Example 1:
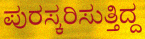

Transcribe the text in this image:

ಪುರಸ್ಕರಿಸುತ್ತಿದ್ದ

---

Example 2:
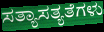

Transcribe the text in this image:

ಸತ್ಯಾಸತ್ಯತೆಗಳು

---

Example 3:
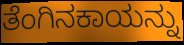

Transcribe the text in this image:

ತೆಂಗಿನಕಾಯನ್ನು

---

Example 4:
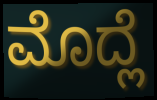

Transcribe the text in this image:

ಮೊದ್ಲೆ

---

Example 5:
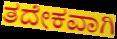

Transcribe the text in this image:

ತದೇಕವಾಗಿ